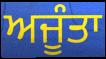
ਅਜੂੰਤਾ